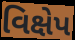
વિક્ષેપ